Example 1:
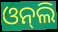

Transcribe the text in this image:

ଓନ୍‍ଲି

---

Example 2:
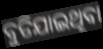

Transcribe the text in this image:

ବୁଡିଯାଇଥିବା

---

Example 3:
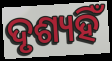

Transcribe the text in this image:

ଦୃଶ୍ୟହିଁ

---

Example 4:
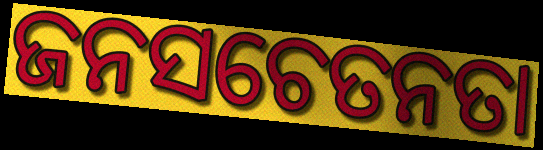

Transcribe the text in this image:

ଜନସଚେତନତା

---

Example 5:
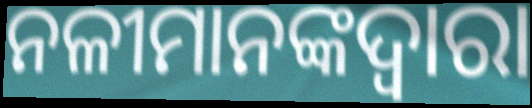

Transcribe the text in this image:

ନଳୀମାନଙ୍କଦ୍ୱାରା